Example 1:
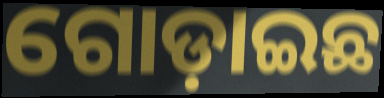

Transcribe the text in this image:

ଗୋଡ଼ାଇଛ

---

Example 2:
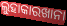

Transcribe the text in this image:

ଲୁହାକାରଖାନା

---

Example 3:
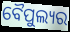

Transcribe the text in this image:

ବୈପୁଲ୍ୟର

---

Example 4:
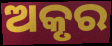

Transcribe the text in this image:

ଅକୃର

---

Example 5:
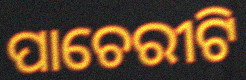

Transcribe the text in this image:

ପାଚେରୀଟି